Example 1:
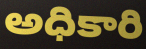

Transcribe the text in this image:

అధికారి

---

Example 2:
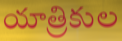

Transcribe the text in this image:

యాత్రికుల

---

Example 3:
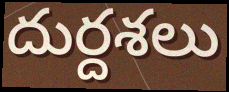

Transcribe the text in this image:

దుర్దశలు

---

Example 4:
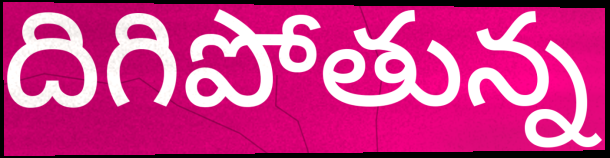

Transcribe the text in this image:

దిగిపోతున్న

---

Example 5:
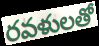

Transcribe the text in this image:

రవళులతో